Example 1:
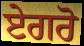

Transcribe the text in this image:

ਏਗਰੋ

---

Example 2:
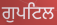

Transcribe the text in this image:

ਗੁਪਟਿਲ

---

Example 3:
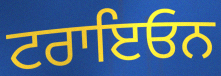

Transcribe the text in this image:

ਟਰਾਇਓਨ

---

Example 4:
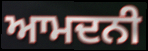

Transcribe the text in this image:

ਆਮਦਨੀ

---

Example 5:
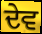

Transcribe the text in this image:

ਦੇਵ